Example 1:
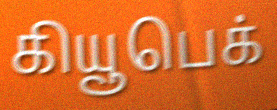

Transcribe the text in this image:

கியூபெக்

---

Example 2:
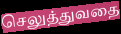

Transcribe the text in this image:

செலுத்துவதை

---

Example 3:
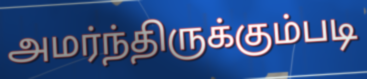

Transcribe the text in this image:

அமர்ந்திருக்கும்படி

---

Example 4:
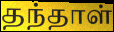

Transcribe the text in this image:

தந்தாள்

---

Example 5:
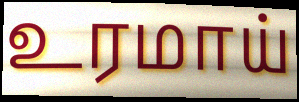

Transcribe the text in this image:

உரமாய்